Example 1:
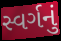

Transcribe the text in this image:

સ્વર્ગનું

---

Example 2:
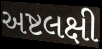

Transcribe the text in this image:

અષ્ટલક્ષી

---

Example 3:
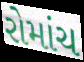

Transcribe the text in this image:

રોમાંચ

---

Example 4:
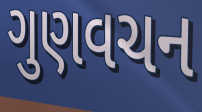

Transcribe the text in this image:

ગુણવચન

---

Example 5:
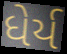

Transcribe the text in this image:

ધેર્ય